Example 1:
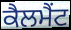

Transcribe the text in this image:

ਕੈਲਮੈਂਟ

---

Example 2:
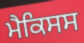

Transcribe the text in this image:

ਮੈਕਿਸਸ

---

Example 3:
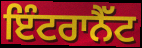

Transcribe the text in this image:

ਇੰਟਰਾਨੈੱਟ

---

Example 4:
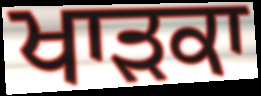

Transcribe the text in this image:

ਖਾੜਕਾ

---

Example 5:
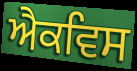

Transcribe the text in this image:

ਐਕਵਿਸ